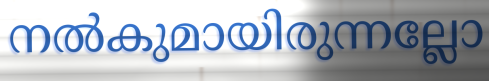
നൽകുമായിരുന്നല്ലോ